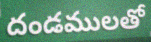
దండములతో